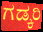
ಗಡ್ಕರಿ